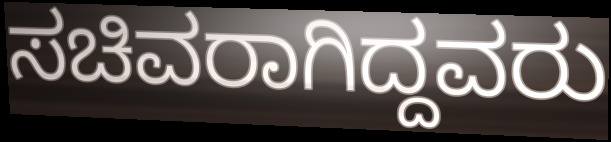
ಸಚಿವರಾಗಿದ್ದವರು